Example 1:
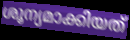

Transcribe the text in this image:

ശൂന്യമാക്കിയത്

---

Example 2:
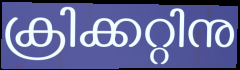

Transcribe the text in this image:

ക്രിക്കറ്റിനു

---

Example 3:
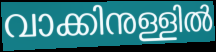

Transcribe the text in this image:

വാക്കിനുള്ളിൽ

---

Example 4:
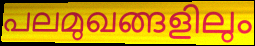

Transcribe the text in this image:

പലമുഖങ്ങളിലും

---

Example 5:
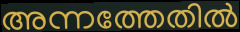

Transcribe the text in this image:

അന്നത്തേതിൽ